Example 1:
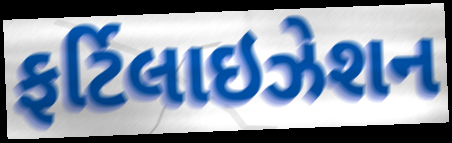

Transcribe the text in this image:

ફર્ટિલાઇઝેશન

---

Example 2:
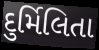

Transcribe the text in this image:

દુર્મિલિતા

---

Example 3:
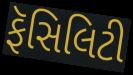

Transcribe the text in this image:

ફૅસિલિટી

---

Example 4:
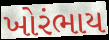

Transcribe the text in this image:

ખોરંભાય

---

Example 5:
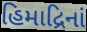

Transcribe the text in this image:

હિમાદ્રિનાં